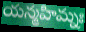
యన్మహిమ్నః